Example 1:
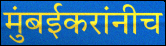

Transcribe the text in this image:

मुंबईकरांनीच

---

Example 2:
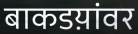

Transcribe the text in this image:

बाकडय़ांवर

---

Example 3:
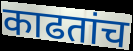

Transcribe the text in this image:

काढतांच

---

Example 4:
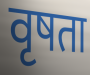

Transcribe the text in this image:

वृषता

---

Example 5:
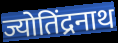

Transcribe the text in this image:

ज्योतिंद्रनाथ